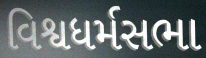
વિશ્વધર્મસભા